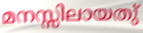
മനസ്സിലായതു്